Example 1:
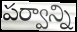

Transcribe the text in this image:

పర్వాన్ని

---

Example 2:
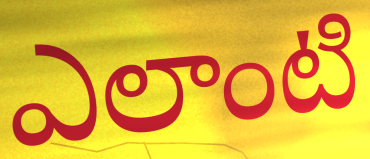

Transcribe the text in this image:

ఎలాంటి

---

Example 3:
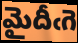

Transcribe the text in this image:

మైదీఁగె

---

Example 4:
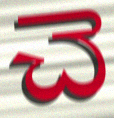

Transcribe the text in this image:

చె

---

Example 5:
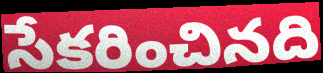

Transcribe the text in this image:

సేకరించినది